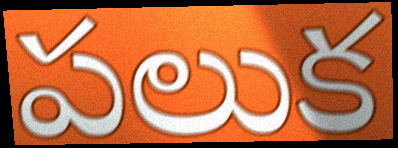
పలుక